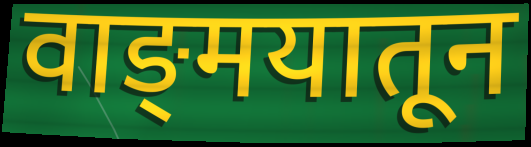
वाङ्मयातून